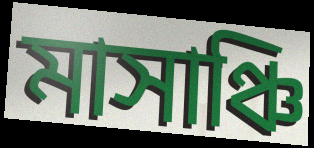
মাসাঞ্চি